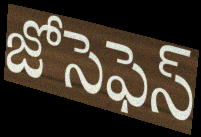
జోసెఫెస్